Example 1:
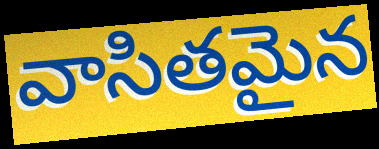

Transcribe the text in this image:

వాసితమైన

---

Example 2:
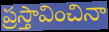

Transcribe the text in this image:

ప్రస్తావించినా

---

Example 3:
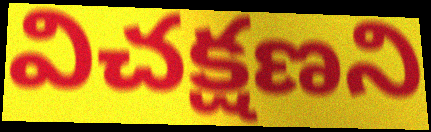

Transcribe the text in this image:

విచక్షణని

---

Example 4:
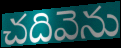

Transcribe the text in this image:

చదివెను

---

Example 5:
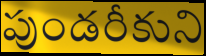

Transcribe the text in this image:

పుండరీకుని